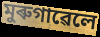
মুৰুগাৱেলে